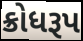
ક્રોધરૂપ